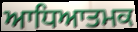
ਆਧਿਆਤਮਕ